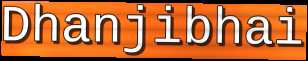
Dhanjibhai